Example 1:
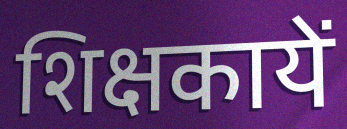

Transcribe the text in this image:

शिक्षकायें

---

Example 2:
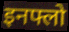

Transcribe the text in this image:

इनफ्लो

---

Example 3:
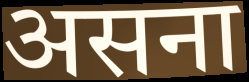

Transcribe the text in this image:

असना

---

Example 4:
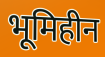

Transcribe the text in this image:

भूमिहीन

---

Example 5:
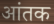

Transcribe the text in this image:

आंतक